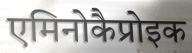
एमिनोकैप्रोइक